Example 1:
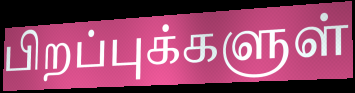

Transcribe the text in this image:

பிறப்புக்களுள்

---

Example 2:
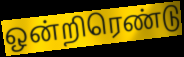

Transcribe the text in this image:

ஒன்றிரெண்டு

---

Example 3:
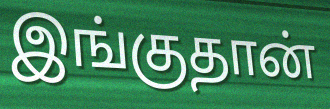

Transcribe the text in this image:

இங்குதான்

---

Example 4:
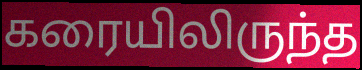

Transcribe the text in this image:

கரையிலிருந்த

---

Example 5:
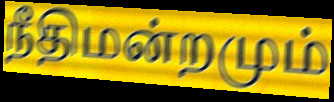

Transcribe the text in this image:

நீதிமன்றமும்